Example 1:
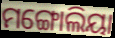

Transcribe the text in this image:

ମଙ୍ଗୋଲିୟା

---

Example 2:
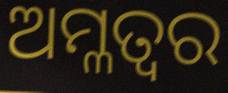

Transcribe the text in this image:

ଅମ୍ଳତ୍ଵର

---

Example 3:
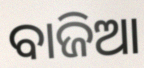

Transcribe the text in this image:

ବାଜିଆ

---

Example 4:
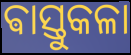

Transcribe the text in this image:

ଵାସ୍ତୁକଳା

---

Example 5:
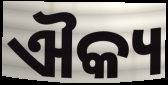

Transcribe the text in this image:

ଐକ୍ୟ